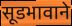
सूडभावाने